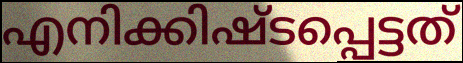
എനിക്കിഷ്ടപ്പെട്ടത്